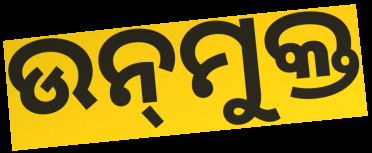
ଉନ୍‍ମୁକ୍ତ